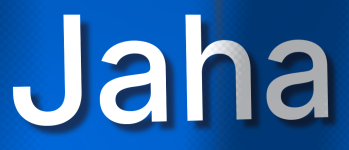
Jaha